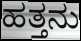
ಹತ್ತನು